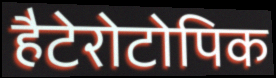
हैटेरोटोपिक